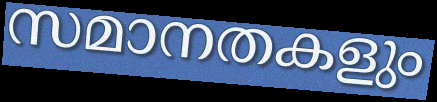
സമാനതകളും